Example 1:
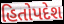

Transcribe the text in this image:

હિતોપદેશ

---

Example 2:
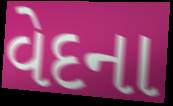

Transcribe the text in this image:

વેદના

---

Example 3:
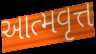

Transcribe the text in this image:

આત્મવૃત્ત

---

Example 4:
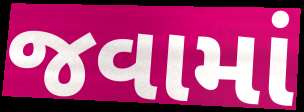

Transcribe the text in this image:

જવામાં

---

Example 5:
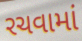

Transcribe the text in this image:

રચવામાં